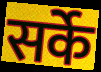
सर्के